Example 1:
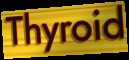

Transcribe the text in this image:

Thyroid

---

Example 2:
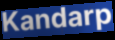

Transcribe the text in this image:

Kandarp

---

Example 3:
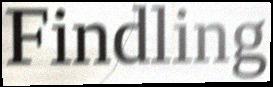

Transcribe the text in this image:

Findling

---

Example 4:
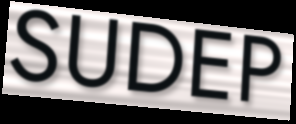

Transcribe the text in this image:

SUDEP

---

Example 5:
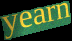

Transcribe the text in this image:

yearn